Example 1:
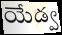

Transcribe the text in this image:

యేడ్వ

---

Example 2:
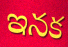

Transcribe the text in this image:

ఇనక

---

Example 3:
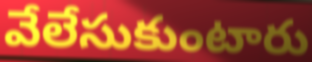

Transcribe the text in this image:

వేలేసుకుంటారు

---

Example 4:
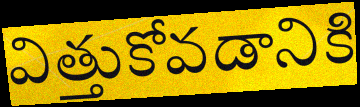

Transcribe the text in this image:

విత్తుకోవడానికి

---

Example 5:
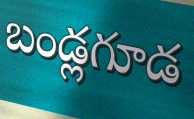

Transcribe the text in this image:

బండ్లగూడ